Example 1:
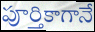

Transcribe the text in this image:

పూర్తికాగానే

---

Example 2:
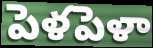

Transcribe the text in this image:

పెళపెళా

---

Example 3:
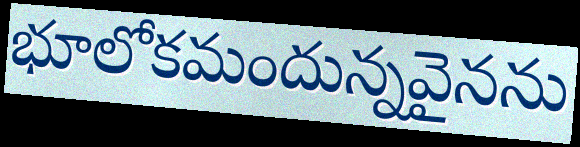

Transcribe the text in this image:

భూలోకమందున్నవైనను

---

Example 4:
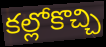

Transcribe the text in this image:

కల్లోకొచ్చి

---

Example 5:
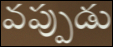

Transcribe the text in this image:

వప్పుడు